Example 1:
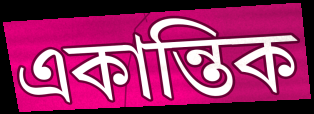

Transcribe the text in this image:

একান্তিক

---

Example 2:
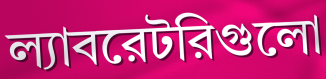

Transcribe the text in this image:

ল্যাবরেটরিগুলো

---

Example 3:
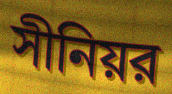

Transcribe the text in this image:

সীনিয়র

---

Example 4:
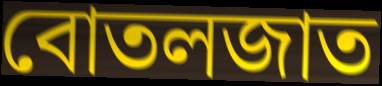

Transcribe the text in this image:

বোতলজাত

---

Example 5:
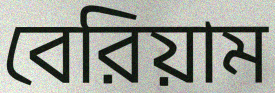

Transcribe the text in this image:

বেরিয়াম